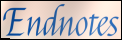
Endnotes